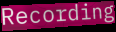
Recording